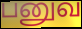
பனுவ